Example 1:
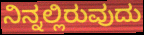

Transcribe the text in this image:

ನಿನ್ನಲ್ಲಿರುವುದು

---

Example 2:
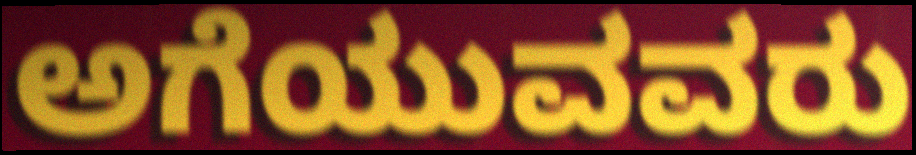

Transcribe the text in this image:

ಅಗೆಯುವವರು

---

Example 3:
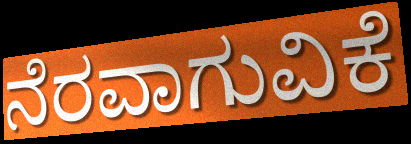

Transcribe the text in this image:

ನೆರವಾಗುವಿಕೆ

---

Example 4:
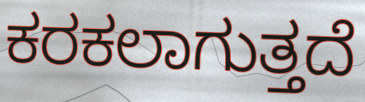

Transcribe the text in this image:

ಕರಕಲಾಗುತ್ತದೆ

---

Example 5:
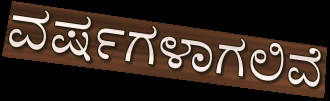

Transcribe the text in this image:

ವರ್ಷಗಳಾಗಲಿವೆ